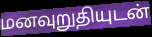
மனவுறுதியுடன்